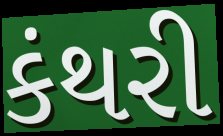
કંથરી